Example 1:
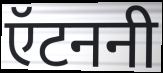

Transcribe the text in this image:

ऍटननी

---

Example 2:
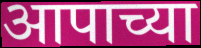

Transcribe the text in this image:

आपाच्या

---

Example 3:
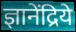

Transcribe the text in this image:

ज्ञानेंद्रिये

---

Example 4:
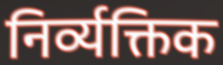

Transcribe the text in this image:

निर्व्यक्तिक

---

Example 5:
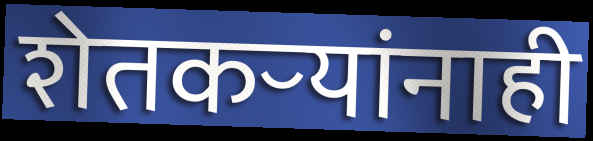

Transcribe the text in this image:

शेतकऱ्यांनाही